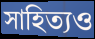
সাহিত্যও